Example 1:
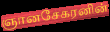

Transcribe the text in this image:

ஞானசேகரனின்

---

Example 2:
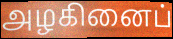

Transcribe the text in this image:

அழகினைப்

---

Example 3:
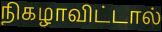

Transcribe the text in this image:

நிகழாவிட்டால்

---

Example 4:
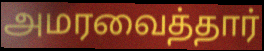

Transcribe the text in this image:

அமரவைத்தார்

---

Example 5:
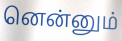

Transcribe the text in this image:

னென்னும்